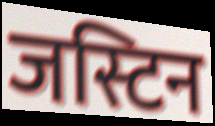
जस्टिन